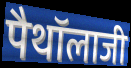
पैथॉलाजी